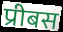
प्रीबस